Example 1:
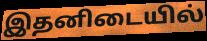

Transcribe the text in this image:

இதனிடையில்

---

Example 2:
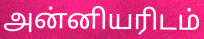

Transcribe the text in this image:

அன்னியரிடம்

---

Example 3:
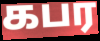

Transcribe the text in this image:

கபர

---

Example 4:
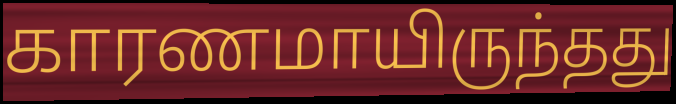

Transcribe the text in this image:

காரணமாயிருந்தது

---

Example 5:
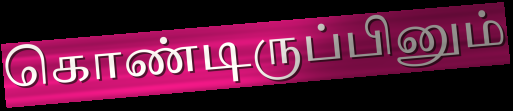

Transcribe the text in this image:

கொண்டிருப்பினும்